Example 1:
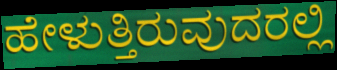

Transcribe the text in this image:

ಹೇಳುತ್ತಿರುವುದರಲ್ಲಿ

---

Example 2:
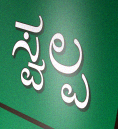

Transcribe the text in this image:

ಸ್ವಲ್ಪ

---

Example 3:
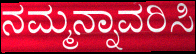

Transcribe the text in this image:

ನಮ್ಮನ್ನಾವರಿಸಿ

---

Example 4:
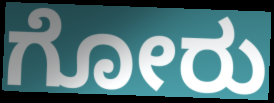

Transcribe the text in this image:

ಗೋರು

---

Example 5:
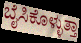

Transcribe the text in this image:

ಬೈಸಿಕೊಳ್ಳುತ್ತಾ